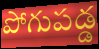
పోగుపడ్డ